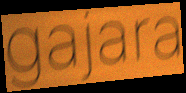
gajara